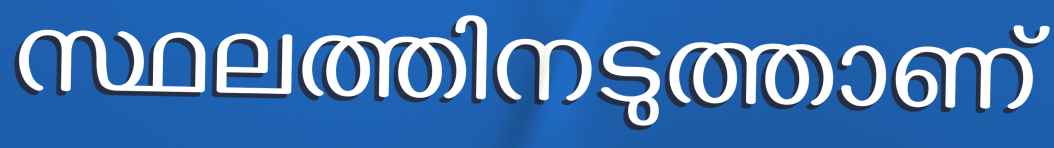
സ്ഥലത്തിനടുത്താണ്